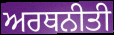
ਅਰਥਨੀਤੀ